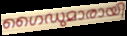
ഗൈഡുമാരായി